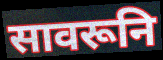
सावरूनि